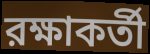
রক্ষাকর্তী